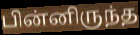
பின்னிருந்த